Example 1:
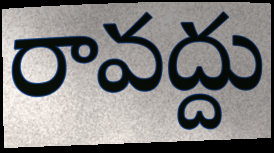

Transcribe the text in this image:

రావద్దు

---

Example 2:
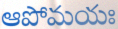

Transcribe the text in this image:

ఆపోమయః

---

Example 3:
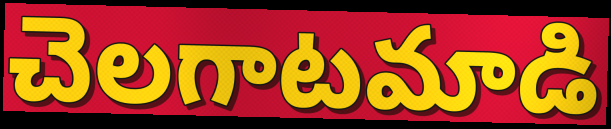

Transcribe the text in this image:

చెలగాటమాడి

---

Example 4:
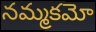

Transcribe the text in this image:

నమ్మకమో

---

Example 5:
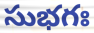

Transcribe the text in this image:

సుభగః